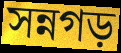
সন্নগড়